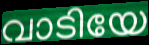
വാടിയേ